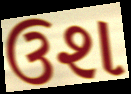
ઉશ